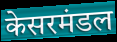
केसरमंडल